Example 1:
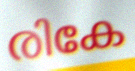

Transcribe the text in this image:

രികേ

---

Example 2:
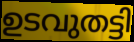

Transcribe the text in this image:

ഉടവുതട്ടി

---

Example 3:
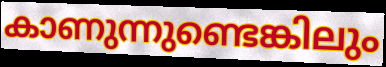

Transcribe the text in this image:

കാണുന്നുണ്ടെങ്കിലും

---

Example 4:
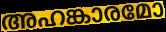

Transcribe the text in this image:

അഹങ്കാരമോ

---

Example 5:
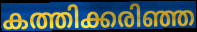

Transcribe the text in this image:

കത്തിക്കരിഞ്ഞ